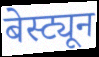
बेस्ट्यून